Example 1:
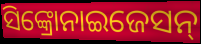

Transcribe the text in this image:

ସିଙ୍କ୍ରୋନାଇଜେସନ୍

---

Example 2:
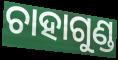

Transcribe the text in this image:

ଚାହାଗୁଣ୍ଡ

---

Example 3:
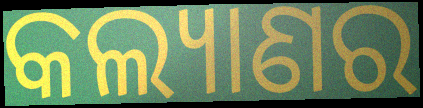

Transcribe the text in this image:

କଲ୍ୟାଣର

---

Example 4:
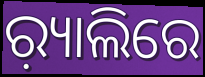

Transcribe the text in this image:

ର଼୍ୟାଲିରେ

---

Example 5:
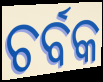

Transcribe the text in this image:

ଚର୍ବକ